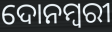
ଦୋନମ୍ବରୀ